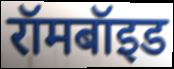
रॉमबॉइड